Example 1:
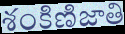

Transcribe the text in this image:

శంకిణిజాతి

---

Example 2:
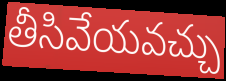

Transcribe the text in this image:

తీసివేయవచ్చు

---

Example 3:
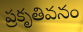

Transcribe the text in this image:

ప్రకృతివనం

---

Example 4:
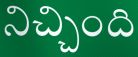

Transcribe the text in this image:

నిచ్చింది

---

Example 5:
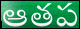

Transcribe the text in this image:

ఆతప